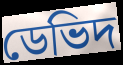
ডেভিদ